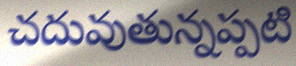
చదువుతున్నప్పటి